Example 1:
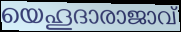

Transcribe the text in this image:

യെഹൂദാരാജാവ്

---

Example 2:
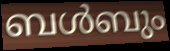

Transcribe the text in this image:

ബൾബും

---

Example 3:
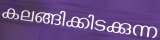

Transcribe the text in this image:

കലങ്ങിക്കിടക്കുന്ന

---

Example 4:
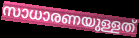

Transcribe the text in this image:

സാധാരണയുള്ളത്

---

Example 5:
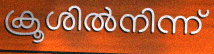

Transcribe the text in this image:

ക്രൂശിൽനിന്ന്